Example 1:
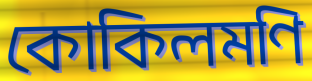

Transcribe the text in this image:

কোকিলমণি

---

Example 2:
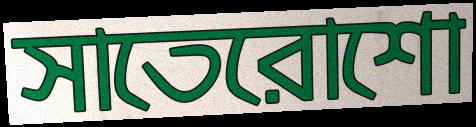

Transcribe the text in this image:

সাতেরোশো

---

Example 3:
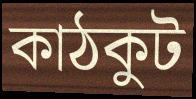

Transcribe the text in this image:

কাঠকুট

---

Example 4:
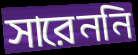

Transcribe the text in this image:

সারেননি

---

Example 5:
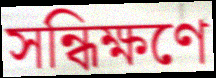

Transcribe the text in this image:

সন্ধিক্ষণে